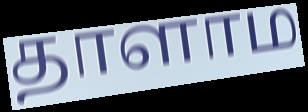
தாளாம